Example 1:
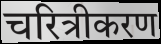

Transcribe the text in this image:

चरित्रीकरण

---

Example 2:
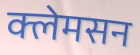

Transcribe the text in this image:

क्लेमसन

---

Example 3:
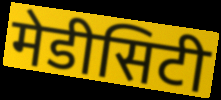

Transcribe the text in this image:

मेडीसिटी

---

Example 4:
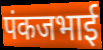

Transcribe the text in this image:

पंकजभाई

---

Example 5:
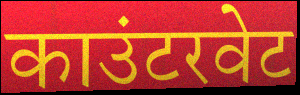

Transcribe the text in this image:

काउंटरवेट